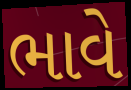
ભાવે